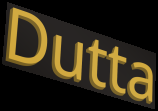
Dutta